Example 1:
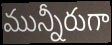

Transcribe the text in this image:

మున్నీరుగా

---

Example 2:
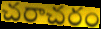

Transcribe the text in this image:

చరాచరం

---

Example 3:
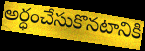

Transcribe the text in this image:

అర్ధంచేసుకొనటానికి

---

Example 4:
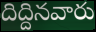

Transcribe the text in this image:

దిద్దినవారు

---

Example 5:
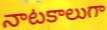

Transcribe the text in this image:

నాటకాలుగా